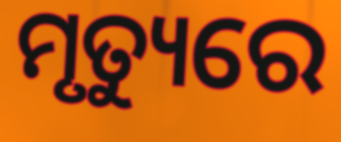
ମୃତ୍ୟୁରେ